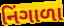
નિંગાળા